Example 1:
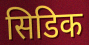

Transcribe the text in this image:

सिडिक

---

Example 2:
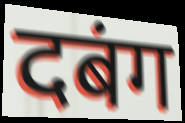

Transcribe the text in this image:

दबंग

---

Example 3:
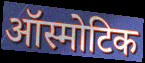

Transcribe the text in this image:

ऑस्मोटिक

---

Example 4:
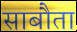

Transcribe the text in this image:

साबौता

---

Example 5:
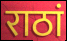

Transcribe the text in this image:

राठां